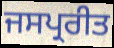
ਜਸਪ੍ਰਰੀਤ